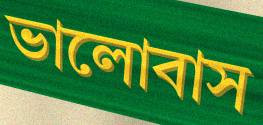
ভালোবাস